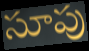
సూపు